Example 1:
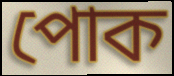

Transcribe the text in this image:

পোক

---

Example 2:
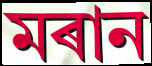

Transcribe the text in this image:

মৰান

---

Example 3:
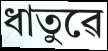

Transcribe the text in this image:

ধাতুৱে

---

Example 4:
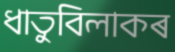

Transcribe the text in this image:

ধাতুবিলাকৰ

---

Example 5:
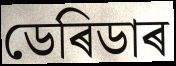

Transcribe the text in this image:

ডেৰিডাৰ